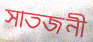
সাতজনী